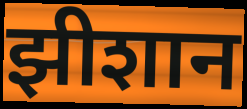
झीशान